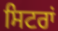
ਸਿਟਰਾਂ